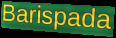
Barispada